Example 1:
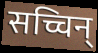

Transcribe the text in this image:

सच्चिन्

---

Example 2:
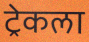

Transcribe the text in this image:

ट्रेकला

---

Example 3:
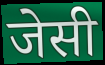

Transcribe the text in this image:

जेसी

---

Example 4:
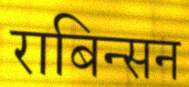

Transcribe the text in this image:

राबिन्सन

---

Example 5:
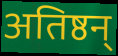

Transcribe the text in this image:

अतिष्ठन्